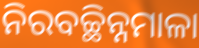
ନିରବଚ୍ଛିନ୍ନମାଳା